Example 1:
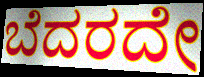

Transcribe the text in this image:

ಬೆದರದೇ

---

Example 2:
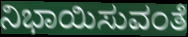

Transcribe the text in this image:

ನಿಭಾಯಿಸುವಂತೆ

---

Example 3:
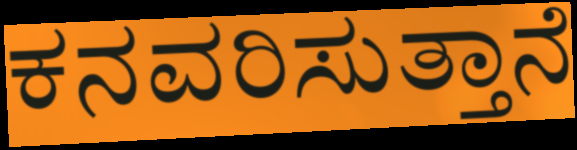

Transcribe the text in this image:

ಕನವರಿಸುತ್ತಾನೆ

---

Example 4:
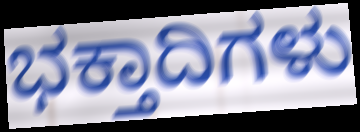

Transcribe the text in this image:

ಭಕ್ತಾದಿಗಳು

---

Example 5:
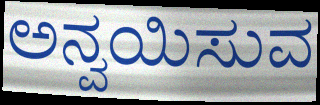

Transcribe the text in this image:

ಅನ್ವಯಿಸುವ